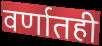
वर्णातही